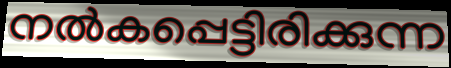
നൽകപ്പെട്ടിരിക്കുന്ന